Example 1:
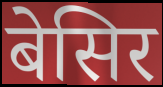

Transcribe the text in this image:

बेसिर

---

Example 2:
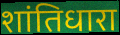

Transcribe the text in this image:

शांतिधारा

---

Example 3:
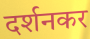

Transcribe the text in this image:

दर्शनकर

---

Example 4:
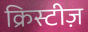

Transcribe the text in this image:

क्रिस्टीज़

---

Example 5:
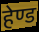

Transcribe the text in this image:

हेण्ड